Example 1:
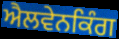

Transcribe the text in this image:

ਐਲਵੇਨਕਿੰਗ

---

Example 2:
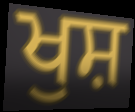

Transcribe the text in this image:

ਖੁਸ਼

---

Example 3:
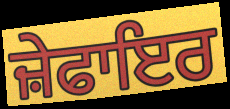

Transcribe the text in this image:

ਜ਼ੇਫਾਇਰ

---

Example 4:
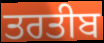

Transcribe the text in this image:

ਤਰਤੀਬ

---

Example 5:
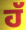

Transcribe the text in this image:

ਹੱ